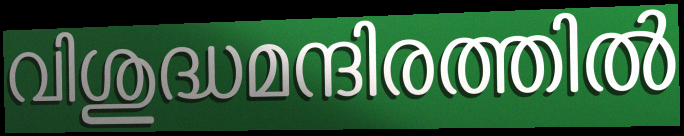
വിശുദ്ധമന്ദിരത്തിൽ